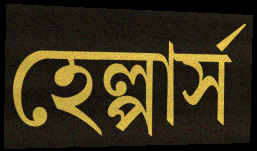
হেল্পার্স